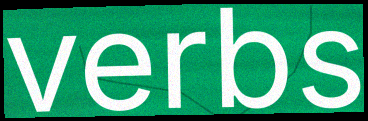
verbs